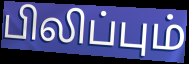
பிலிப்பும்